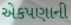
એકપણાની